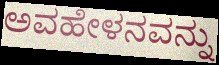
ಅವಹೇಳನವನ್ನು